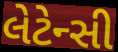
લેટેન્સી